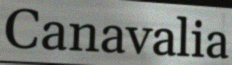
Canavalia